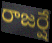
రాజర్షే